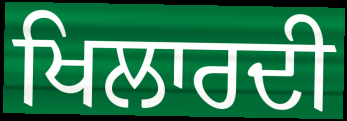
ਖਿਲਾਰਦੀ